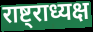
राष्ट्राध्यक्ष